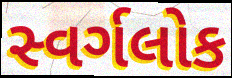
સ્વર્ગલોક